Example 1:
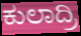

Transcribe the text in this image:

ಕುಲಾದ್ರಿ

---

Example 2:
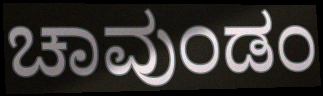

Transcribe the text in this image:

ಚಾವುಂಡಂ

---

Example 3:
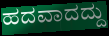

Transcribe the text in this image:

ಹದವಾದದ್ದು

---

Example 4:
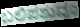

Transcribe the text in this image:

ಬಲಿಪಶುವೂ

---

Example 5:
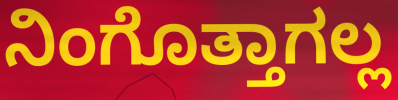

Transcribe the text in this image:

ನಿಂಗೊತ್ತಾಗಲ್ಲ